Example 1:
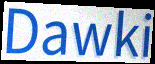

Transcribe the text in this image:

Dawki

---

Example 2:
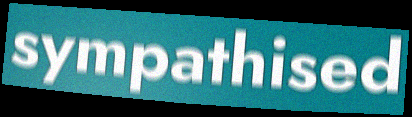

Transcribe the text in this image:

sympathised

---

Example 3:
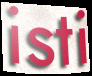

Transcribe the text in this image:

isti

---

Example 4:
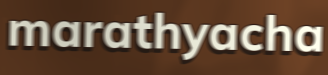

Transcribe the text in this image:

marathyacha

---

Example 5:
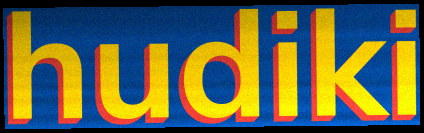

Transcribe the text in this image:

hudiki